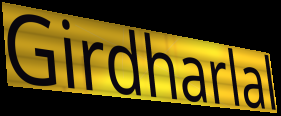
Girdharlal